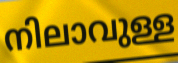
നിലാവുള്ള